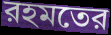
রহমতের